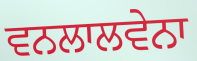
ਵਨਲਾਲਵੇਨਾ